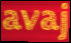
avaj